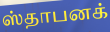
ஸ்தாபனக்